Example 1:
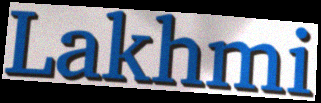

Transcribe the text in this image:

Lakhmi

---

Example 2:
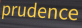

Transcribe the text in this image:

prudence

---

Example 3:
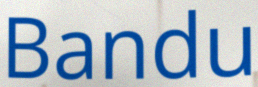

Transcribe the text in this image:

Bandu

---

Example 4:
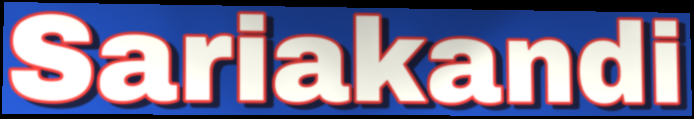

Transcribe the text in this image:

Sariakandi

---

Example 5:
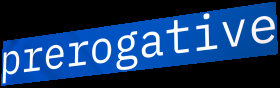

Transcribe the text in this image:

prerogative